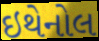
ઇથેનોલ